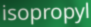
isopropyl